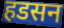
हडसन